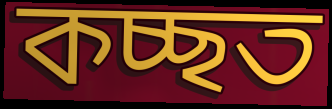
কচ্ছত